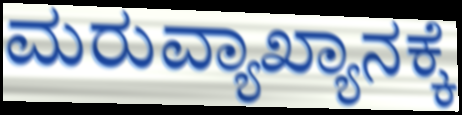
ಮರುವ್ಯಾಖ್ಯಾನಕ್ಕೆ